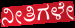
ನೀತಿಗಳೇ